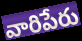
వారిపేరు